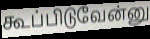
கூப்பிடுவேன்னு